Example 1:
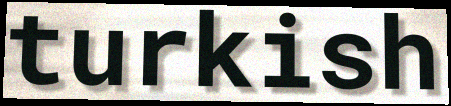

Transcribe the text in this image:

turkish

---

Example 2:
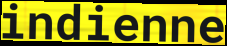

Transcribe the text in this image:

indienne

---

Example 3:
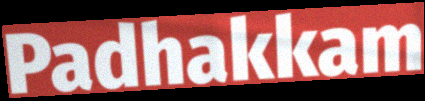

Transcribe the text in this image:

Padhakkam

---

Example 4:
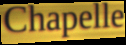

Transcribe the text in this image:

Chapelle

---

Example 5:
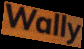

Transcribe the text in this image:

Wally